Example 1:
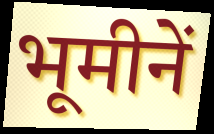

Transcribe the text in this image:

भूमीनें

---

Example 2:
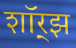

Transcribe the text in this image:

शॉर्झ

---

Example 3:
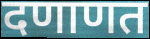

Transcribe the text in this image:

दणाणत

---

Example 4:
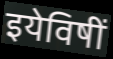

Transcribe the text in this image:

इयेविषीं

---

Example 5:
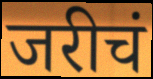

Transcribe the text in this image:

जरीचं